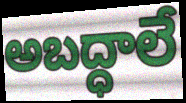
అబద్ధాలే